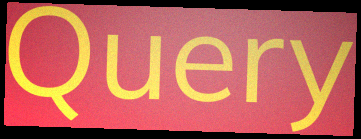
Query